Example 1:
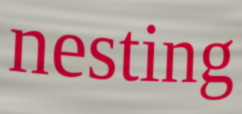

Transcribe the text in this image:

nesting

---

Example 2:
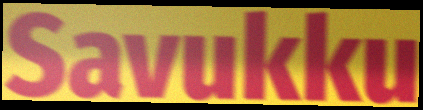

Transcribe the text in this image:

Savukku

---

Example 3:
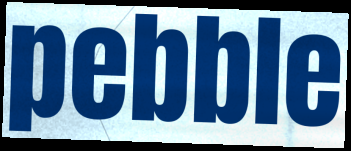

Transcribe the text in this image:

pebble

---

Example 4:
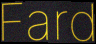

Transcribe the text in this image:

Fard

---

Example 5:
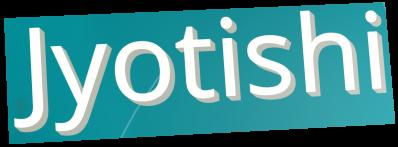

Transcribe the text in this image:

Jyotishi